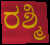
ರಶ್ಮಿ